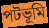
পটভূমি